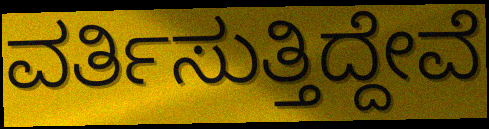
ವರ್ತಿಸುತ್ತಿದ್ದೇವೆ